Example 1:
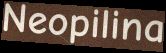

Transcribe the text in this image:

Neopilina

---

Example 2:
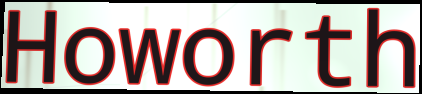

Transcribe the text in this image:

Howorth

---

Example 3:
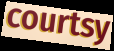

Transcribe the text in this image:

courtsy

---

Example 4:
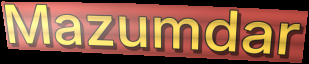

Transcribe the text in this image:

Mazumdar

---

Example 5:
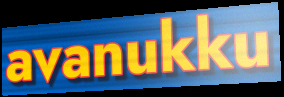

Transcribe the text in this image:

avanukku